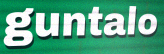
guntalo